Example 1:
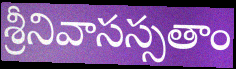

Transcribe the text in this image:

శ్రీనివాసస్సతాం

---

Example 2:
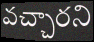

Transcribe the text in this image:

వచ్చారని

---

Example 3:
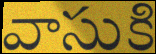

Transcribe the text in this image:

వాసుకి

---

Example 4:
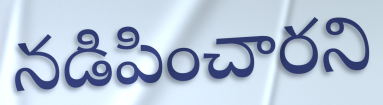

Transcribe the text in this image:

నడిపించారని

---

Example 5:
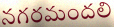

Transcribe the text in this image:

నగరమందలి